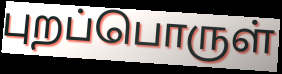
புறப்பொருள்